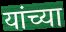
यांच्‍या